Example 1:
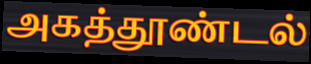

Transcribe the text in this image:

அகத்தூண்டல்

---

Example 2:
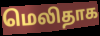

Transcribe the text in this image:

மெலிதாக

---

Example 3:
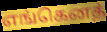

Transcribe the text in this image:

எங்கெனத்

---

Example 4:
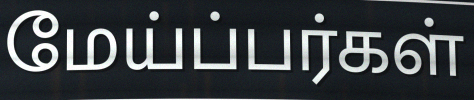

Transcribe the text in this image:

மேய்ப்பர்கள்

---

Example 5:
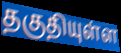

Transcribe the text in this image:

தகுதியுள்ள